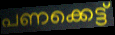
പണക്കെട്ട്